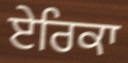
ਏਰਿਕਾ